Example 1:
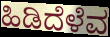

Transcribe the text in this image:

ಹಿಡಿದೆಳೆವ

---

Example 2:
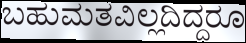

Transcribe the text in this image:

ಬಹುಮತವಿಲ್ಲದಿದ್ದರೂ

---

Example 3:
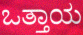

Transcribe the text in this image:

ಒತ್ತಾಯ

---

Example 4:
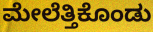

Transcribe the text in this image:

ಮೇಲೆತ್ತಿಕೊಂಡು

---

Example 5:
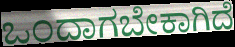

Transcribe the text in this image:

ಒಂದಾಗಬೇಕಾಗಿದೆ